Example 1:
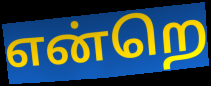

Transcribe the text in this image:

என்றெ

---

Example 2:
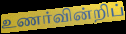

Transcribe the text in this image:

உணர்வின்றிப்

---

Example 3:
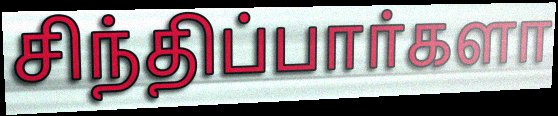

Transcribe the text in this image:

சிந்திப்பார்களா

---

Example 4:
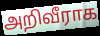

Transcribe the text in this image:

அறிவீராக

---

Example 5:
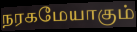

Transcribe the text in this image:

நரகமேயாகும்